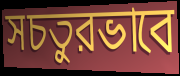
সচতুরভাবে